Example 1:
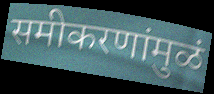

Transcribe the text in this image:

समीकरणांमुळं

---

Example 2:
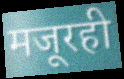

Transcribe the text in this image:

मजूरही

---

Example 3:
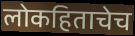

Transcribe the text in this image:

लोकहिताचेच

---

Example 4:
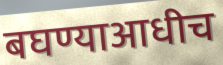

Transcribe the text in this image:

बघण्याआधीच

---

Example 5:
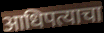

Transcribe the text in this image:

आधिपत्याचा